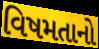
વિષમતાનો